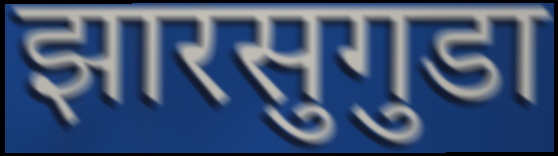
झारसुगुडा